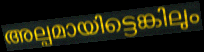
അല്പമായിട്ടെങ്കിലും